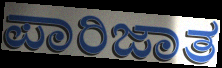
ಪಾರಿಜಾತ